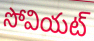
సోవియట్